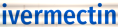
ivermectin